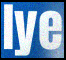
Iye